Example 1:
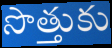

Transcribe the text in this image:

సొత్తుకు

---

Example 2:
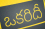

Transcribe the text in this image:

ఒకరిదీ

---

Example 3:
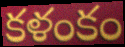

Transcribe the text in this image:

కళంకం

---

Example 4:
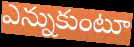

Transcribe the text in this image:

ఎన్నుకుంటూ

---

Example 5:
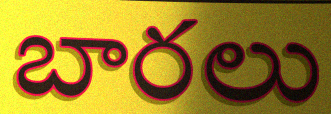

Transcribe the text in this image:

బారలు